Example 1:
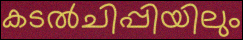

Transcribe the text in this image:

കടൽചിപ്പിയിലും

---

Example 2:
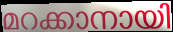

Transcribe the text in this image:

മറക്കാനായി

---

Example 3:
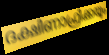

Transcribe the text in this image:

ദക്ഷിണാഫ്രിക്കയും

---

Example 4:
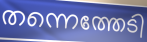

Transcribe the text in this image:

തന്നെത്തേടി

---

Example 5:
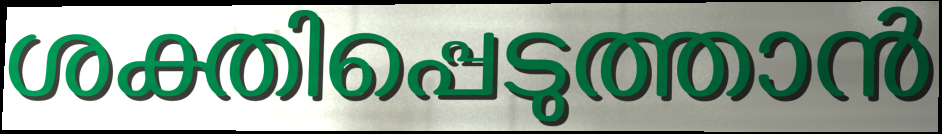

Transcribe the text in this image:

ശക്തിപ്പെടുത്താൻ